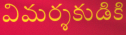
విమర్శకుడికి